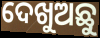
ଦେଖୁଅଛୁ